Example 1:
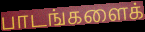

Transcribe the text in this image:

பாடங்களைக்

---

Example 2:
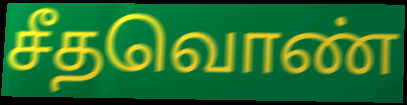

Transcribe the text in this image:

சீதவொண்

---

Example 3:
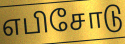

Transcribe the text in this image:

எபிசோடு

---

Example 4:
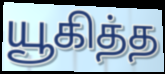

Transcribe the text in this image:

யூகித்த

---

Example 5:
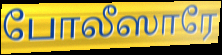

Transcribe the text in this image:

போலீஸாரே